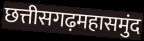
छत्तीसगढ़महासमुंद